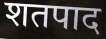
शतपाद